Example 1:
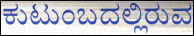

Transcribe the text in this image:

ಕುಟುಂಬದಲ್ಲಿರುವ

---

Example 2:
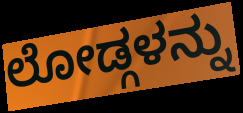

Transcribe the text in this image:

ಲೋಡ್ಗಳನ್ನು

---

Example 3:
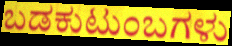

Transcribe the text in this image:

ಬಡಕುಟುಂಬಗಳು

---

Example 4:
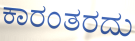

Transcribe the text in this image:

ಕಾರಂತರದು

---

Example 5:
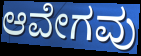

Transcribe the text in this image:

ಆವೇಗವು